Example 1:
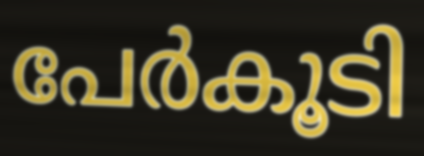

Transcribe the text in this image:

പേർകൂടി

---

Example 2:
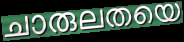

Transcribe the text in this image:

ചാരുലതയെ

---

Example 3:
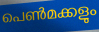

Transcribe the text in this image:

പെൺമക്കളും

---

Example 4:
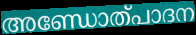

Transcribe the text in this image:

അണ്ഡോത്പാദന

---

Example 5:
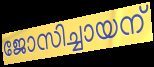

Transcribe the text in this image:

ജോസിച്ചായന്